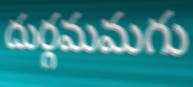
దుర్గమమగు